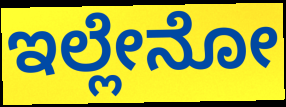
ಇಲ್ಲೇನೋ